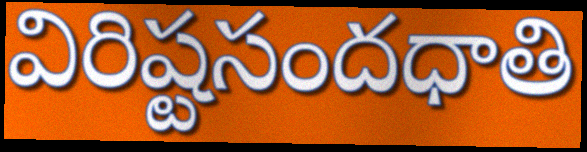
విరిష్టసందధాతి